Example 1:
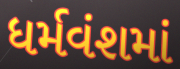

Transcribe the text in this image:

ધર્મવંશમાં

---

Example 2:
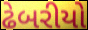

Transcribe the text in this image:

ઢેબરીયો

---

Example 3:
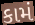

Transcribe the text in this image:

કામં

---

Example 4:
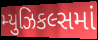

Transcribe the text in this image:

મ્યુઝિકલ્સમાં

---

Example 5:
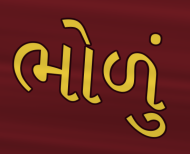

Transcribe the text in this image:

ભોળું